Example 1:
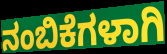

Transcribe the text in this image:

ನಂಬಿಕೆಗಳಾಗಿ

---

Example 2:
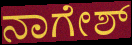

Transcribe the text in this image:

ನಾಗೇಶ್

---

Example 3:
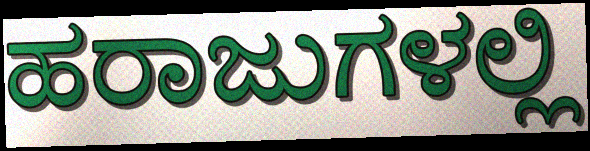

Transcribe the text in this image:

ಹರಾಜುಗಳಲ್ಲಿ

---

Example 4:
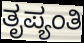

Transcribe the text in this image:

ತೃಪ್ಯಂತಿ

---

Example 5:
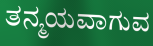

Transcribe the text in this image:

ತನ್ಮಯವಾಗುವ